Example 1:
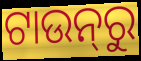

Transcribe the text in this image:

ଟାଉନ୍‌ରୁ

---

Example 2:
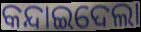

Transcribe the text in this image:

କନ୍ଦାଇଦେଲା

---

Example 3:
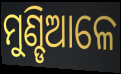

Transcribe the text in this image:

ମୁଣ୍ଡିଆଳେ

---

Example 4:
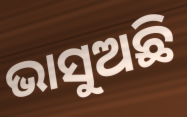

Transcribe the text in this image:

ଭାସୁଅଛି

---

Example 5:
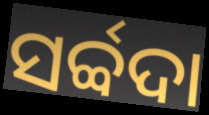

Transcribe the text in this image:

ସର୍ବ୍ବଦା